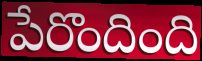
పేరొందింది